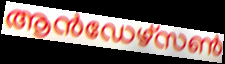
ആൻഡേഴ്സൺ